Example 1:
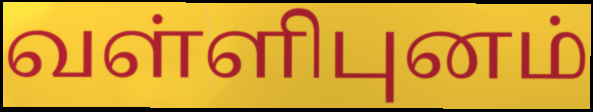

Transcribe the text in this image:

வள்ளிபுனம்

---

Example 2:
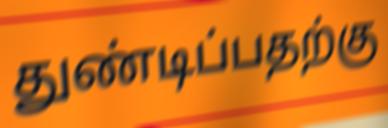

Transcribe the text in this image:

துண்டிப்பதற்கு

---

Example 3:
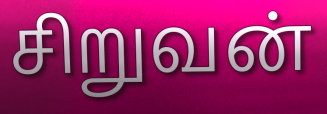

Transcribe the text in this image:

சிறுவன்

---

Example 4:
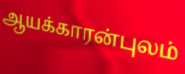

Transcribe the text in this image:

ஆயக்காரன்புலம்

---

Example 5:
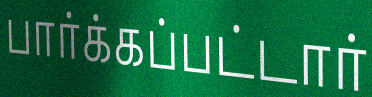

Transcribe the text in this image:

பார்க்கப்பட்டார்